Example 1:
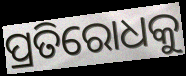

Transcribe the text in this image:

ପ୍ରତିରୋଧକୁ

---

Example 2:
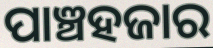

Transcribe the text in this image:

ପାଞ୍ଚହଜାର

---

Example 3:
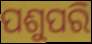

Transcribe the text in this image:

ପଶୁପରି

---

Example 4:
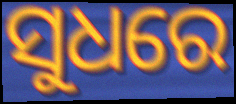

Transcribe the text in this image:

ସୁଧରେ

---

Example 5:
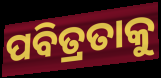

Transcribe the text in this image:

ପବିତ୍ରତାକୁ